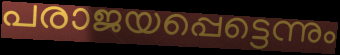
പരാജയപ്പെട്ടെന്നും